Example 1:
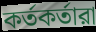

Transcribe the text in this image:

কর্তকর্তারা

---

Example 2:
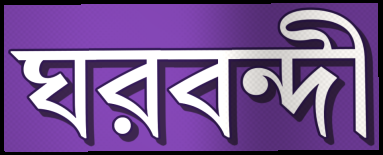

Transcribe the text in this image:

ঘরবন্দী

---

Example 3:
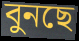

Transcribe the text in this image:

বুনছে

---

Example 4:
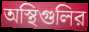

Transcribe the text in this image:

অস্থিগুলির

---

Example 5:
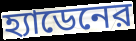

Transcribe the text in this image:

হ্যাডেনের